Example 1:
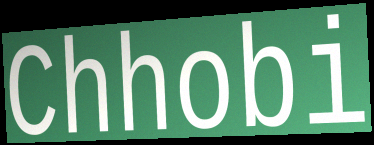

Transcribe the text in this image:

Chhobi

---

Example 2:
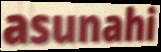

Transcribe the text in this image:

asunahi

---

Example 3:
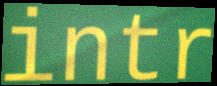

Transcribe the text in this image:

intr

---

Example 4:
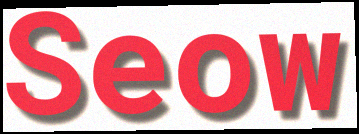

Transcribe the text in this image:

Seow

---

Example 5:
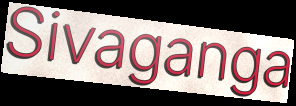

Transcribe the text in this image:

Sivaganga